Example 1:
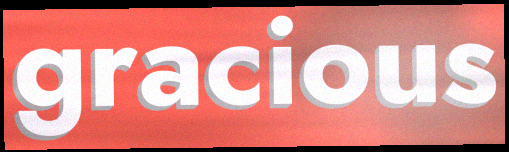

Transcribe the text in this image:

gracious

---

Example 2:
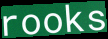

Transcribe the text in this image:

rooks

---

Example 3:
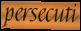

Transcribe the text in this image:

persecuti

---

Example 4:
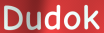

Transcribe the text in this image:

Dudok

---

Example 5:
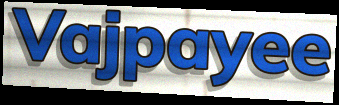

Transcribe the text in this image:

Vajpayee